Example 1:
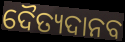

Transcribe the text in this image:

ଦୈତ୍ୟଦାନବ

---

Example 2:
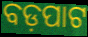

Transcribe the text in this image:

ବଡ଼ପାଟ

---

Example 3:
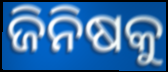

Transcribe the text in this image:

ଜିନିଷକୁ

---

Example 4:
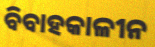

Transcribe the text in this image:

ବିବାହକାଳୀନ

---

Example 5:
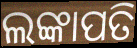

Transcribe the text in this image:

ଲଙ୍କାପତି